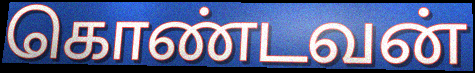
கொண்டவன்